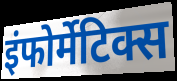
इंफोर्मेटिक्स